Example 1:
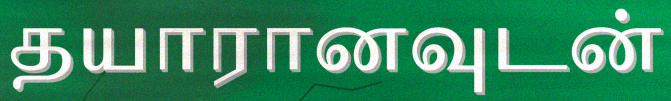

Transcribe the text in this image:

தயாரானவுடன்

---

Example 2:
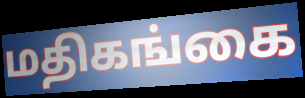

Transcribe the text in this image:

மதிகங்கை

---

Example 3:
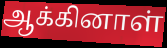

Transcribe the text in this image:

ஆக்கினாள்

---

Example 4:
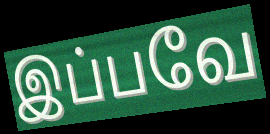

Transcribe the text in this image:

இப்பவே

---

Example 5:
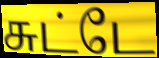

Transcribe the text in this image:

சுட்டே